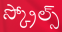
స్క్రోల్స్